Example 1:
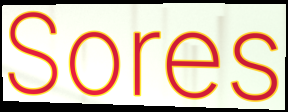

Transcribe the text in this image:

Sores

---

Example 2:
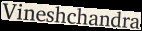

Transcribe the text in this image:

Vineshchandra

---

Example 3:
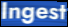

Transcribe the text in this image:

Ingest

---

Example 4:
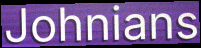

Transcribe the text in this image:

Johnians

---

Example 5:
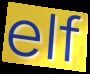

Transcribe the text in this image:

elf